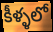
కీళ్ళలో